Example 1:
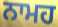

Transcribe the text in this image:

ਨਾਮਹ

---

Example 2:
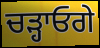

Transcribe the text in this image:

ਚੜ੍ਹਾਓਗੇ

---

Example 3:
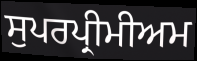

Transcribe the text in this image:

ਸੁਪਰਪ੍ਰੀਮੀਅਮ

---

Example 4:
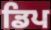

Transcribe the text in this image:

ਡਿਪ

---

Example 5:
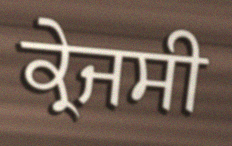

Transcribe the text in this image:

ਕ੍ਰੇਜਸੀ